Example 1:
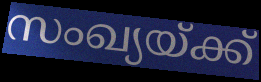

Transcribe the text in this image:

സംഖ്യയ്ക്ക്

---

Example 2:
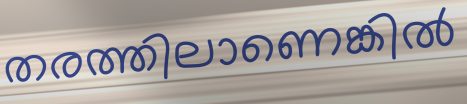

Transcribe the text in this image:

തരത്തിലാണെങ്കിൽ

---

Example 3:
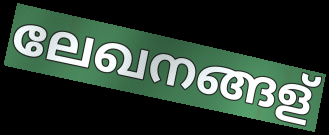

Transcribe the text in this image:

ലേഖനങ്ങള്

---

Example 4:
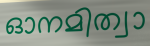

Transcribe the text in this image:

ഓനമിത്വാ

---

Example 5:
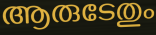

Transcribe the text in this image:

ആരുടേതും